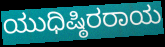
ಯುಧಿಷ್ಠಿರರಾಯ